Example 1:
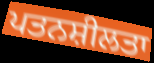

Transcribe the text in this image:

ਪਤਨਸ਼ੀਲਤਾ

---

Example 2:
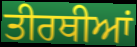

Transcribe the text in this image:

ਤੀਰਥੀਆਂ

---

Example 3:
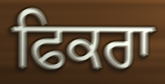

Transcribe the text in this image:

ਫਿਕਰਾ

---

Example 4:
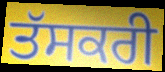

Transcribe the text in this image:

ਤੱਸਕਰੀ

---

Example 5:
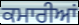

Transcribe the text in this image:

ਕਮਾਰੀਆਂ